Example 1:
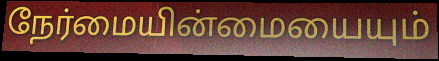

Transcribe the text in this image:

நேர்மையின்மையையும்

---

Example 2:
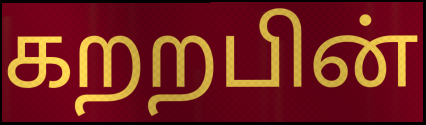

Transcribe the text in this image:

கறறபின்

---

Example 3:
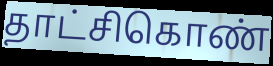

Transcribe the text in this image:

தாட்சிகொண்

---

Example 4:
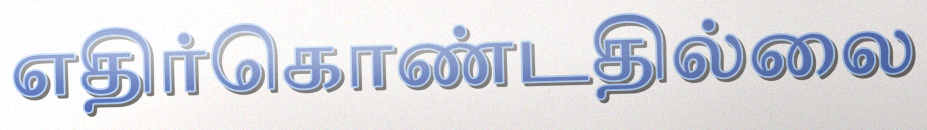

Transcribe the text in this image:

எதிர்கொண்டதில்லை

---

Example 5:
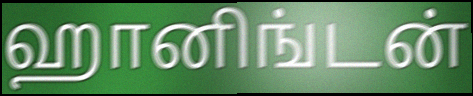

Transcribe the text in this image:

ஹானிங்டன்